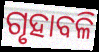
ଗୃହାବଳି